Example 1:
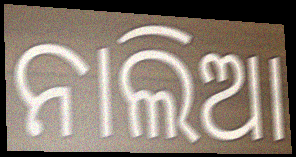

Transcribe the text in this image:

ନାଲିଆ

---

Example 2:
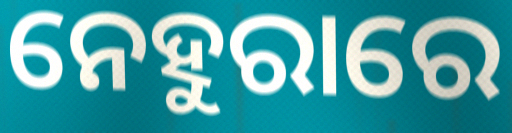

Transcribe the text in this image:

ନେହୁରାରେ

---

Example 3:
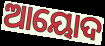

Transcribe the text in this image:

ଆୟୋଦ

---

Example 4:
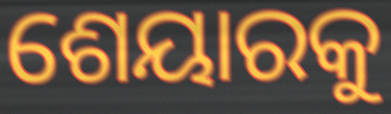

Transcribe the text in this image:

ଶେୟାରକୁ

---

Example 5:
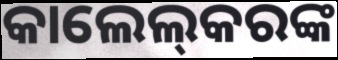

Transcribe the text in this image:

କାଲେଲ୍‌କରଙ୍କ